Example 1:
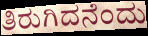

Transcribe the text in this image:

ತಿರುಗಿದನೆಂದು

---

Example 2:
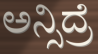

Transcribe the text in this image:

ಅನ್ಸಿದ್ರೆ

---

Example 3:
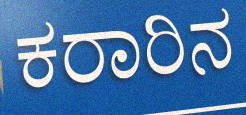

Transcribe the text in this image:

ಕರಾರಿನ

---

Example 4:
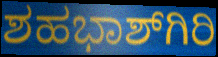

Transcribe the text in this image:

ಶಹಭಾಶ್‌ಗಿರಿ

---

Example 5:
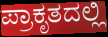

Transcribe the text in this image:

ಪ್ರಾಕೃತದಲ್ಲಿ